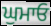
ਘੁਮਾਓ